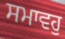
ਸਮਾਵਹੁ